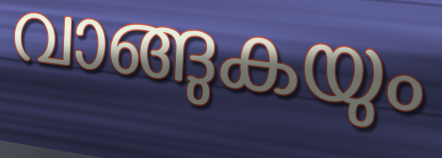
വാങ്ങുകയും